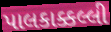
પાલકાક્કલ્લી